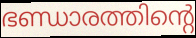
ഭണ്ഡാരത്തിന്റെ